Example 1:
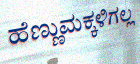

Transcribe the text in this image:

ಹೆಣ್ಣುಮಕ್ಕಳಿಗಲ್ಲ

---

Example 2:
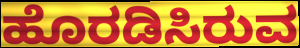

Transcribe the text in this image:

ಹೊರಡಿಸಿರುವ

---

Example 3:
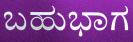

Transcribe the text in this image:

ಬಹುಭಾಗ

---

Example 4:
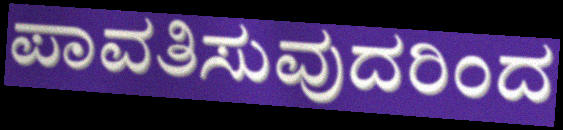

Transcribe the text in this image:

ಪಾವತಿಸುವುದರಿಂದ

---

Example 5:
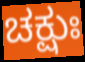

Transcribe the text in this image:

ಚಕ್ಷುಃ